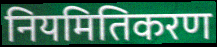
नियमितिकरण